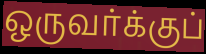
ஒருவர்க்குப்